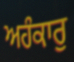
ਅਹੰਕਾਰੁ